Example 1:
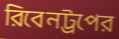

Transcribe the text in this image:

রিবেনট্রপের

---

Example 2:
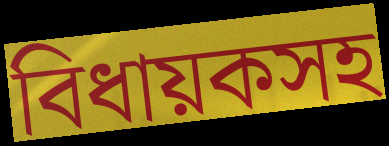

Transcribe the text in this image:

বিধায়কসহ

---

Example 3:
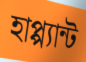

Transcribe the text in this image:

হাপ্প্যান্ট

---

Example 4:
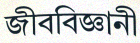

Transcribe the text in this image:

জীববিজ্ঞানী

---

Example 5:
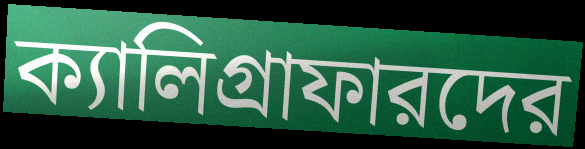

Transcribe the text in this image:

ক্যালিগ্রাফারদের